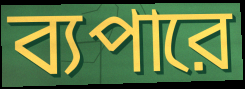
ব্যপারে